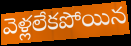
వెళ్లలేకపోయిన